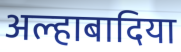
अल्हाबादिया